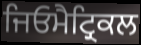
ਜਿਓਮੈਟ੍ਰਿਕਲ